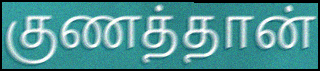
குணத்தான்